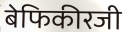
बेफिकीरजी